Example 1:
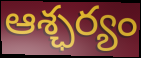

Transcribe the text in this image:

ఆశ్ఛర్యం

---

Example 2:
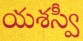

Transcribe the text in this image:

యశస్వీ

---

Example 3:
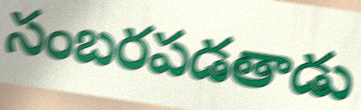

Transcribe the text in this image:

సంబరపడతాడు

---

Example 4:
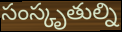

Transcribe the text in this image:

సంస్కృతుల్ని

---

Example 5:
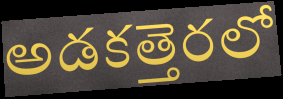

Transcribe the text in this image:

అడకత్తెరలో